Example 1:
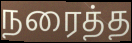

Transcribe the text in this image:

நரைத்த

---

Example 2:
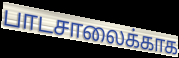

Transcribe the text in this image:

பாடசாலைக்காக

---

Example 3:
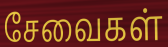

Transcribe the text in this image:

சேவைகள்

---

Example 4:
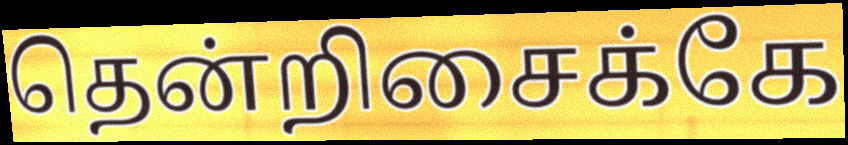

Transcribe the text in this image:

தென்றிசைக்கே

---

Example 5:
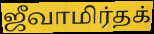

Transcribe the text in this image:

ஜீவாமிர்தக்